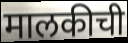
मालकीची